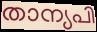
താന്യപി